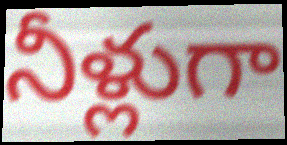
నీళ్లుగా